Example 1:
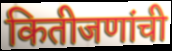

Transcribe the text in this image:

कितीजणांची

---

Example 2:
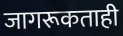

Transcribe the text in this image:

जागरूकताही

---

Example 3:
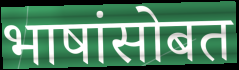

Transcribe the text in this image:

भाषांसोबत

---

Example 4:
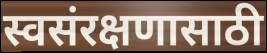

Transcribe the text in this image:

स्वसंरक्षणासाठी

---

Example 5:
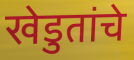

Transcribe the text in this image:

खेडुतांचे